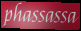
phassassa